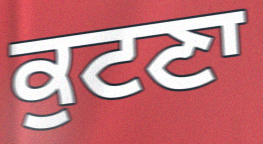
ਕੁਟਣਾ